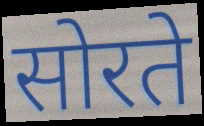
सोरते